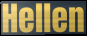
Hellen